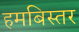
हमबिस्तर